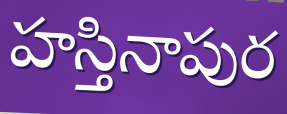
హస్తినాపుర